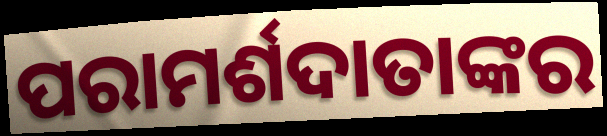
ପରାମର୍ଶଦାତାଙ୍କର